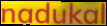
nadukal